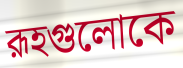
রূহগুলোকে